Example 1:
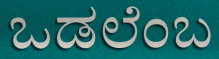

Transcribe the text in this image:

ಒಡಲೆಂಬ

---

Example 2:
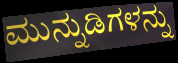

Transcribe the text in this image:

ಮುನ್ನುಡಿಗಳನ್ನು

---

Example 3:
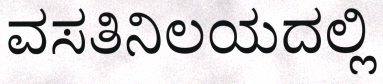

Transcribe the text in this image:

ವಸತಿನಿಲಯದಲ್ಲಿ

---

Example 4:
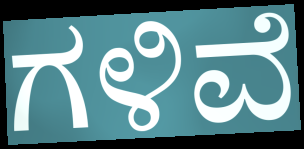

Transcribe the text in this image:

ಗಳಿವೆ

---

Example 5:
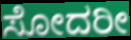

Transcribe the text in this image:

ಸೋದರೀ